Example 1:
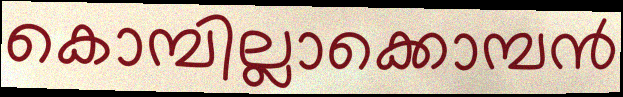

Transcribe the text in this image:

കൊമ്പില്ലാക്കൊമ്പൻ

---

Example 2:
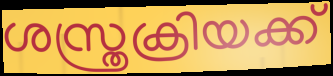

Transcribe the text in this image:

ശസ്ത്രക്രിയക്ക്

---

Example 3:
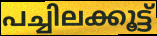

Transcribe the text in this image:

പച്ചിലക്കൂട്ട്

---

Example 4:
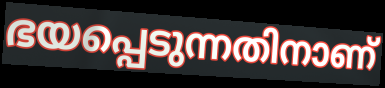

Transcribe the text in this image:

ഭയപ്പെടുന്നതിനാണ്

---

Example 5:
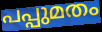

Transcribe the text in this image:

പപ്പുമതം